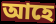
আহে